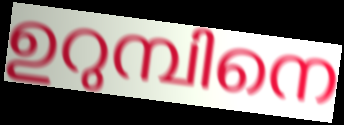
ഉറുമ്പിനെ